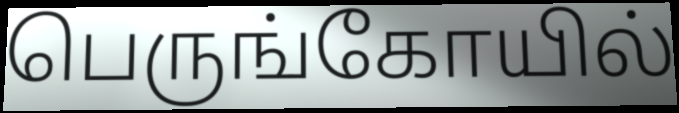
பெருங்கோயில்